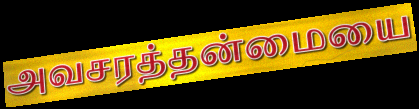
அவசரத்தன்மையை